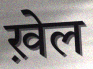
ख़ेल